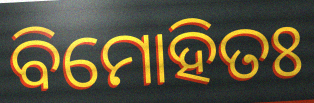
ବିମୋହିତଃ